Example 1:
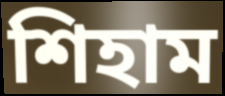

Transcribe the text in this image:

শিহাম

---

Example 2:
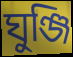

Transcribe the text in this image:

ঘুঞ্জি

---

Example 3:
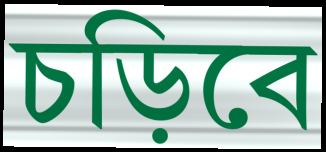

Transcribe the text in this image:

চড়িবে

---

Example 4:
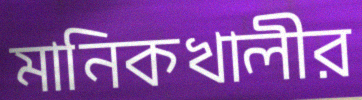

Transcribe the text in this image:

মানিকখালীর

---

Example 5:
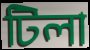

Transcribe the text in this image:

টিলা